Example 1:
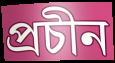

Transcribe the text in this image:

প্ৰচীন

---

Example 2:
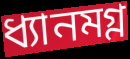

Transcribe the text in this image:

ধ্যানমগ্ন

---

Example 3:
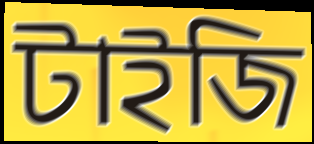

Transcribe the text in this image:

টাইজি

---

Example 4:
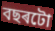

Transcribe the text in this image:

বছৰটো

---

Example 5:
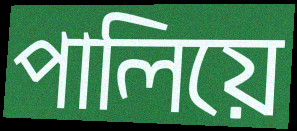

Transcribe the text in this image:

পালিয়ে